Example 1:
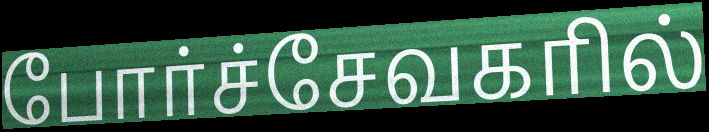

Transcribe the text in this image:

போர்ச்சேவகரில்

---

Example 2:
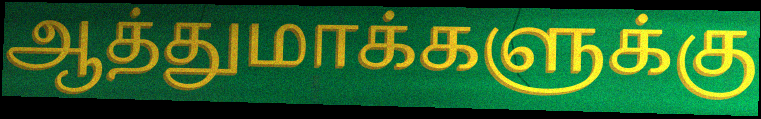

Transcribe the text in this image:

ஆத்துமாக்களுக்கு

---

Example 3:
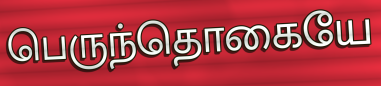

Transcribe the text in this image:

பெருந்தொகையே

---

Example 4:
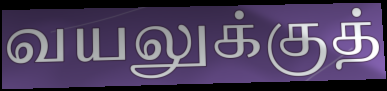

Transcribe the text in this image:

வயலுக்குத்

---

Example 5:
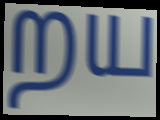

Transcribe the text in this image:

றய